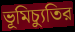
ভূমিচ্যুতির